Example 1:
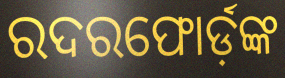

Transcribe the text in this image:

ରଦରଫୋର୍ଡ଼ଙ୍କ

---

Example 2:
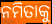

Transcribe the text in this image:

ନମିତାକୁ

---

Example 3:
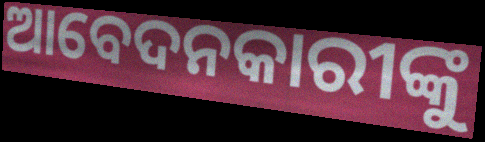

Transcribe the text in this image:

ଆବେଦନକାରୀଙ୍କୁ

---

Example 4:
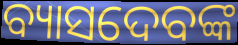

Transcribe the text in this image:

ବ୍ୟାସଦେବଙ୍କ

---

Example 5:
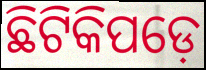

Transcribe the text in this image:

ଛିଟିକିପଡ଼େ